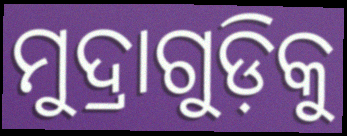
ମୁଦ୍ରାଗୁଡ଼ିକୁ